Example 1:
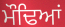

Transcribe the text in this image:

ਮੌਢਿਆਂ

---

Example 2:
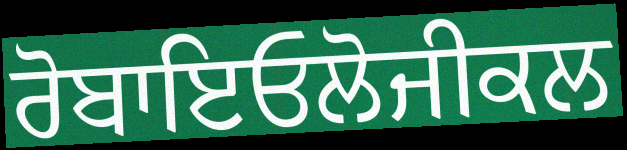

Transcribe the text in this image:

ਰੋਬਾਇਓਲੋਜੀਕਲ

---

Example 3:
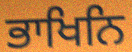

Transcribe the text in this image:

ਭਾਖਿਨਿ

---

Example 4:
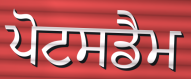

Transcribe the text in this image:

ਪੋਟਸਡੈਮ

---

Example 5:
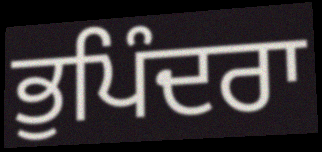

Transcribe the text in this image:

ਭੁਪਿੰਦਰਾ